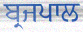
ਬ੍ਰਜਪਾਲ